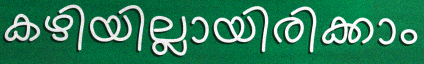
കഴിയില്ലായിരിക്കാം